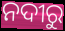
ନଦୀରୁ